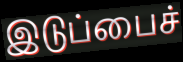
இடுப்பைச்